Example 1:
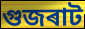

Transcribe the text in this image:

গুজৰাট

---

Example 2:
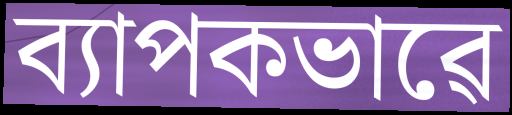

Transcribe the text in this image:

ব্যাপকভাৱে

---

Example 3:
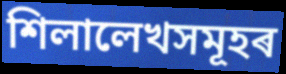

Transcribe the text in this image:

শিলালেখসমূহৰ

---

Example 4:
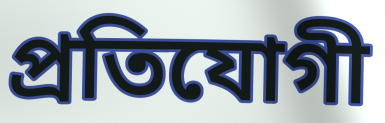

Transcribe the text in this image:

প্ৰতিযোগী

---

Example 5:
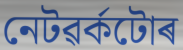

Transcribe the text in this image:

নেটৱৰ্কটোৰ